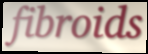
fibroids